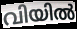
വിയിൽ